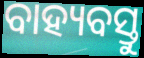
ବାହ୍ୟବସ୍ତୁ